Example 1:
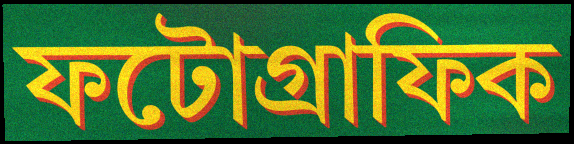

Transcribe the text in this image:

ফটোগ্ৰাফিক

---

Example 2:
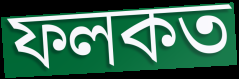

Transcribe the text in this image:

ফলকত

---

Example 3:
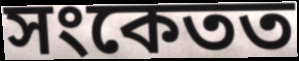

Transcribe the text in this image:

সংকেতত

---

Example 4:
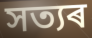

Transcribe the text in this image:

সত্যৰ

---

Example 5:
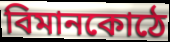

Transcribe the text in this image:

বিমানকোঠে